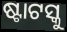
ଷ୍ଟାଟସ୍କୁ